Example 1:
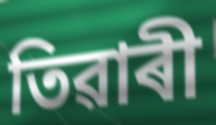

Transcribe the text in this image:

তিৱাৰী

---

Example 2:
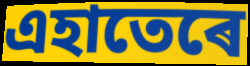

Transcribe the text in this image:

এহাতেৰে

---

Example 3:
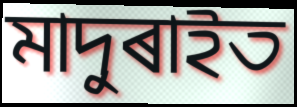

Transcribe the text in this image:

মাদুৰাইত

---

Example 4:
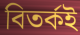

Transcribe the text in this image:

বিতৰ্কই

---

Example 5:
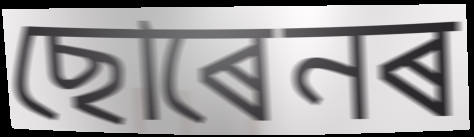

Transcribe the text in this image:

ছোৰেনৰ